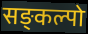
सङ्कल्पो